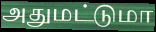
அதுமட்டுமா